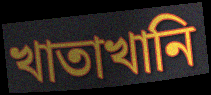
খাতাখানি